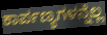
ಕಾರ್ಪಣ್ಯಗಳನ್ನೆಲ್ಲ